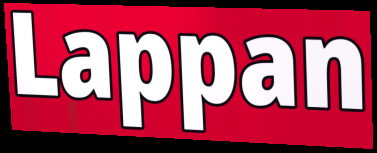
Lappan